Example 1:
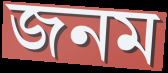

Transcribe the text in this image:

জনম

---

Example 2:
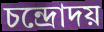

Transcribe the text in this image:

চন্দ্রোদয়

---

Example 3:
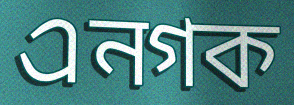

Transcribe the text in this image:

এনগক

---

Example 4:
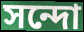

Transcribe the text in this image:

সন্দো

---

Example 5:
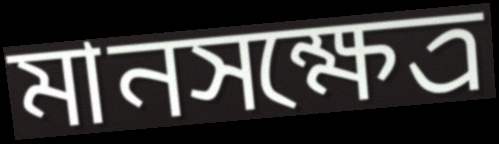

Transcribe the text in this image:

মানসক্ষেত্র